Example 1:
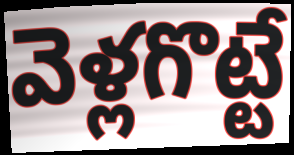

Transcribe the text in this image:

వెళ్లగొట్టే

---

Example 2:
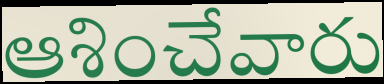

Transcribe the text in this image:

ఆశించేవారు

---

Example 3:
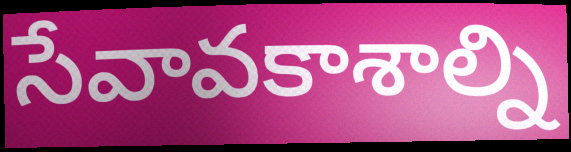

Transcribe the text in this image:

సేవావకాశాల్ని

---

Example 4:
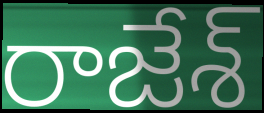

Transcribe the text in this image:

రాజేశ్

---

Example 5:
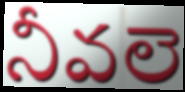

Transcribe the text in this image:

నీవలె